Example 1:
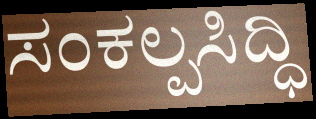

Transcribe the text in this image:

ಸಂಕಲ್ಪಸಿದ್ಧಿ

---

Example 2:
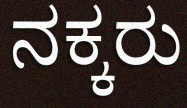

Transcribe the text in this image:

ನಕ್ಕರು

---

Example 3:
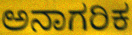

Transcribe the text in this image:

ಅನಾಗರಿಕ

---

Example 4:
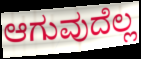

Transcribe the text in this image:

ಆಗುವುದೆಲ್ಲ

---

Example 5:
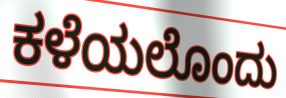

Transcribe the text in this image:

ಕಳೆಯಲೊಂದು